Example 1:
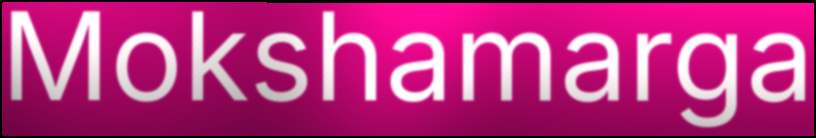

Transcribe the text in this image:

Mokshamarga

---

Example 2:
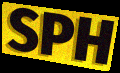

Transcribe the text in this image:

SPH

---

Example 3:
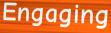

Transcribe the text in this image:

Engaging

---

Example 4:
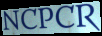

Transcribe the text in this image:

NCPCR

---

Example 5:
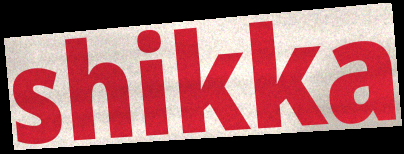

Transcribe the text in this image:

shikka